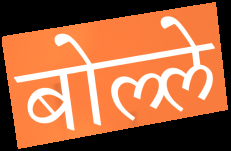
बोल्ले